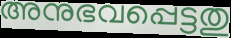
അനുഭവപ്പെട്ടതു